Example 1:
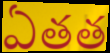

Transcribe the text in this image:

ఏతత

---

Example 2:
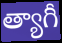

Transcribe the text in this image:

త్యాగీ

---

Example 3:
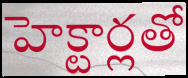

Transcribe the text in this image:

హెక్టార్లతో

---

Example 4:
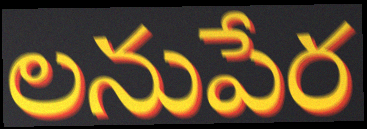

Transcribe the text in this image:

లనుపేర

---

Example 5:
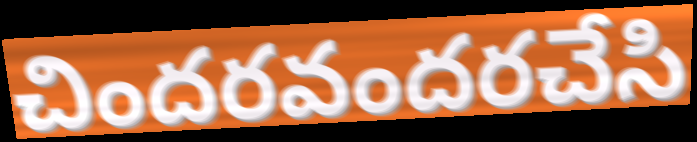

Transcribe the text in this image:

చిందరవందరచేసి